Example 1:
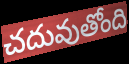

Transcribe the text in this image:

చదువుతోంది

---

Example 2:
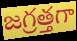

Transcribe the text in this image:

జగ్రత్తగా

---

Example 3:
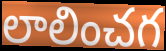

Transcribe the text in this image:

లాలించగ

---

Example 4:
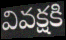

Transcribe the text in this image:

వివక్షకి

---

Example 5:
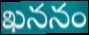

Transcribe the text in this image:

ఖననం